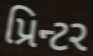
પ્રિન્ટર